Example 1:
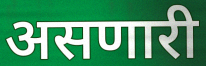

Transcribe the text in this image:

असणारी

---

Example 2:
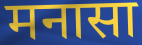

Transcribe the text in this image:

मनासा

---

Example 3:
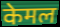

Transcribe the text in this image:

केमल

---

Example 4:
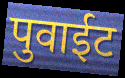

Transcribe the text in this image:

पुवाईट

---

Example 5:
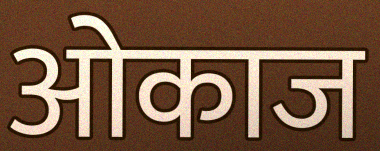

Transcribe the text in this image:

ओकाज